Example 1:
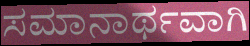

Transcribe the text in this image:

ಸಮಾನಾರ್ಥವಾಗಿ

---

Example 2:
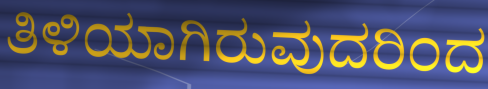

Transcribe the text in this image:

ತಿಳಿಯಾಗಿರುವುದರಿಂದ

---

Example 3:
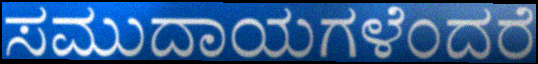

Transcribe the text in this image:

ಸಮುದಾಯಗಳೆಂದರೆ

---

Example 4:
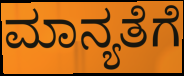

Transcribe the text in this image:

ಮಾನ್ಯತೆಗೆ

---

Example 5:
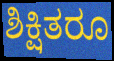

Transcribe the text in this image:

ಶಿಕ್ಷಿತರೂ